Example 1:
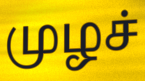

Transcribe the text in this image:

முழச்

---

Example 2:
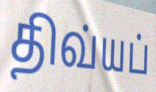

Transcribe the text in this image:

திவ்யப்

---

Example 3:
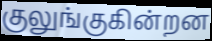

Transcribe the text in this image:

குலுங்குகின்றன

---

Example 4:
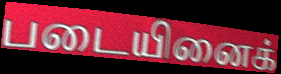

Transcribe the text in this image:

படையினைக்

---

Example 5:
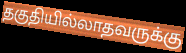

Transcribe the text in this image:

தகுதியில்லாதவருக்கு